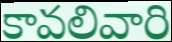
కావలివారి